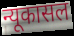
न्यूकासल